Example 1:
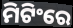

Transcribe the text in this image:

ମିଟିଂରେ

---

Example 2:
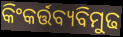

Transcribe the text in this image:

କିଂକର୍ତ୍ତବ୍ଯବିମୁଢ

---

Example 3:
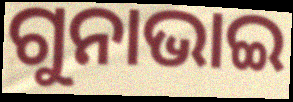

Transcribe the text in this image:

ଗୁନାଭାଇ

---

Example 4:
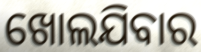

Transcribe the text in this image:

ଖୋଲଯିବାର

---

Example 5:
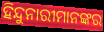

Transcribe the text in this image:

ହିନ୍ଦୁନାରୀମାନଙ୍କର